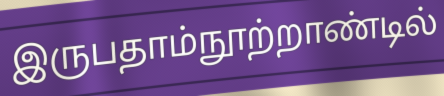
இருபதாம்நூற்றாண்டில்